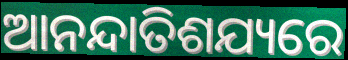
ଆନନ୍ଦାତିଶଯ୍ୟରେ